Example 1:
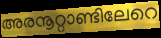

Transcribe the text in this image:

അരനൂറ്റാണ്ടിലേറെ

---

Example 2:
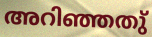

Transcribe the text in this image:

അറിഞ്ഞതു്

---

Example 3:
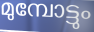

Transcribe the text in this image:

മുമ്പോട്ടും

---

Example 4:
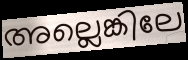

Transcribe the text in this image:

അല്ലെങ്കിലേ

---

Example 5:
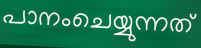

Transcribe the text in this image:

പാനംചെയ്യുന്നത്